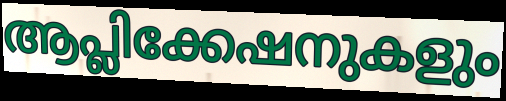
ആപ്ലിക്കേഷനുകളും